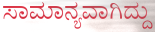
ಸಾಮಾನ್ಯವಾಗಿದ್ದು